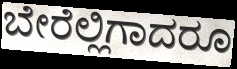
ಬೇರೆಲ್ಲಿಗಾದರೂ